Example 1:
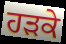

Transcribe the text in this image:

ਹੜਕੇ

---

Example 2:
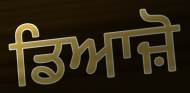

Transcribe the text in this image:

ਡਿਆਜ਼ੋ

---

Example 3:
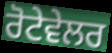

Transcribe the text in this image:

ਰੋਟੇਵੇਲਰ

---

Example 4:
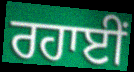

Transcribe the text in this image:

ਰਹਾਈਂ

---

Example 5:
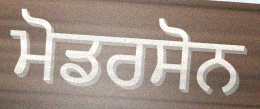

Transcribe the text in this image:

ਮੋਡਰਸੋਨ